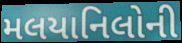
મલયાનિલોની